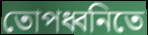
তোপধ্বনিতে